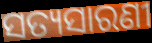
ସତ୍ୟସାରଣୀ